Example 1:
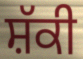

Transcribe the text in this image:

ਸ਼ੱਕੀ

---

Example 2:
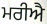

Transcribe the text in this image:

ਮਰੀਐ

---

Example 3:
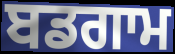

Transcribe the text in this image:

ਬਡਗਾਮ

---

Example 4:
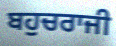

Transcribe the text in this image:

ਬਹੁਚਰਾਜੀ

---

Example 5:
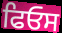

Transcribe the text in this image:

ਫਿਓਸ